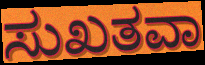
ಸುಖತವಾ